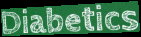
Diabetics